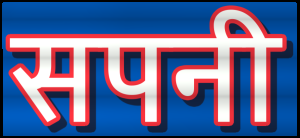
सपनी